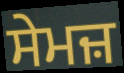
ਸੇਮਜ਼